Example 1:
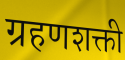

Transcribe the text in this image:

ग्रहणशक्ती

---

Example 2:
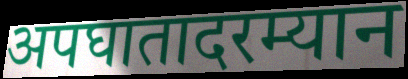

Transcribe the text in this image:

अपघातादरम्यान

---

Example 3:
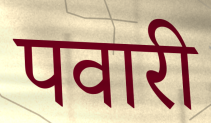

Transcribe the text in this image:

पवारी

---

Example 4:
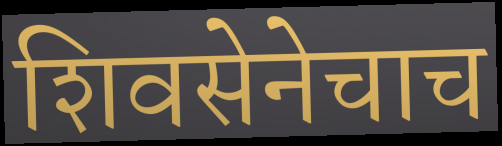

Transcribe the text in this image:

शिवसेनेचाच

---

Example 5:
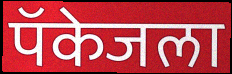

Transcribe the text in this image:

पॅकेजला